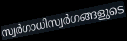
സ്വർഗാധിസ്വർഗങ്ങളുടെ